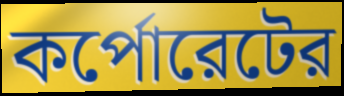
কর্পোরেটের